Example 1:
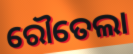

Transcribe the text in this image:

ରୌତେଲା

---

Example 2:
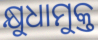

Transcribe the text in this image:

କ୍ଷୁଧାମୁକ୍ତ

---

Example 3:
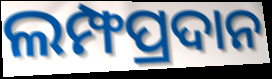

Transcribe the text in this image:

ଲମ୍ଫପ୍ରଦାନ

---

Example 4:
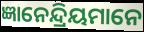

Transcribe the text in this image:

ଜ୍ଞାନେନ୍ଦ୍ରିୟମାନେ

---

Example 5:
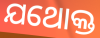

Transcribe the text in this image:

ଯଥୋକ୍ତ